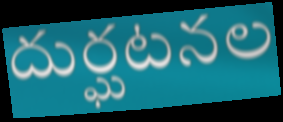
దుర్ఘటనల